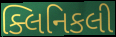
ક્લિનિકલી